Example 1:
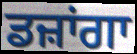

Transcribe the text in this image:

ਡਜ਼ਾਂਗਾ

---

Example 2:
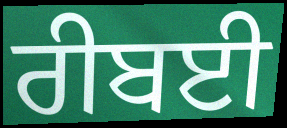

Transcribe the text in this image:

ਰੀਬਈ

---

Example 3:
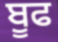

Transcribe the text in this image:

ਬੂਫ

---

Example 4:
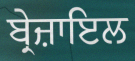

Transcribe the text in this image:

ਬ੍ਰੇਜ਼ਾਇਲ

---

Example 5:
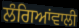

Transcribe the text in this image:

ਲੰਗਿਆਂਵਾਲੀ